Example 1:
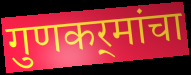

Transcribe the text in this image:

गुणकर्मांचा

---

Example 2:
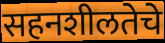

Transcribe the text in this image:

सहनशीलतेचे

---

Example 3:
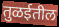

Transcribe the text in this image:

तुळईतील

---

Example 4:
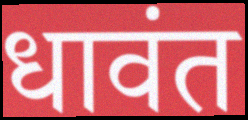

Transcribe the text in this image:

धावंत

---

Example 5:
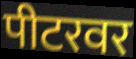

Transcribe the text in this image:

पीटरवर